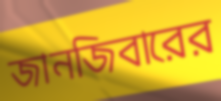
জানজিবারের